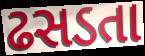
ઢસડતા